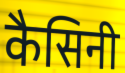
कैसिनी